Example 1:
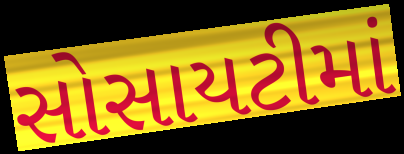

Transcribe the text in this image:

સોસાયટીમાં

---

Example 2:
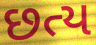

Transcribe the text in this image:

છત્ય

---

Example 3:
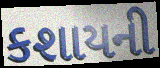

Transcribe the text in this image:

કશાયની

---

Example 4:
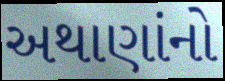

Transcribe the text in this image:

અથાણાંનો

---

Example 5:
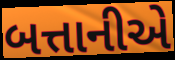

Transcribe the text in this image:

બત્તાનીએ